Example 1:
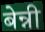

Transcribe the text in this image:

बेन्नी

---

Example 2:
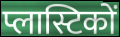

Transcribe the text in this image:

प्लास्टिकों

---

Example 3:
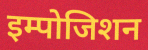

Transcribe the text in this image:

इम्पोजिशन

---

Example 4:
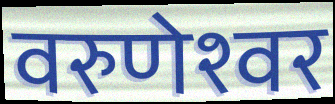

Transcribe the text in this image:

वरुणेश्वर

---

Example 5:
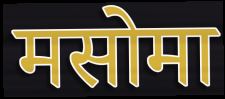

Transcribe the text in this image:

मसोमा